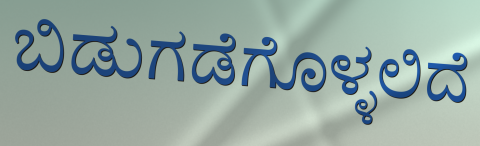
ಬಿಡುಗಡೆಗೊಳ್ಳಲಿದೆ